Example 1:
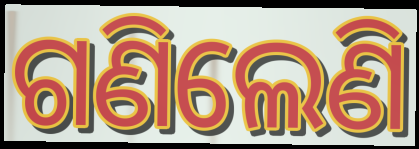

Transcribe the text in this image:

ଗଣିଲେଣି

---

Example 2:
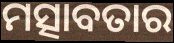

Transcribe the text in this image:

ମତ୍ସାବତାର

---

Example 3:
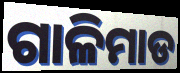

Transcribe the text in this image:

ଗାଳିମାଡ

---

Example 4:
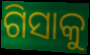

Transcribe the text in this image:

ଗିସାକୁ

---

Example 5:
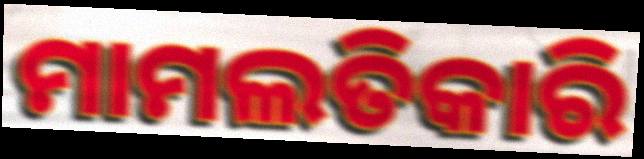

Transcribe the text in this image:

ମାମଲତିକାରି